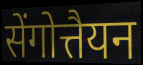
सेंगोत्तैयन